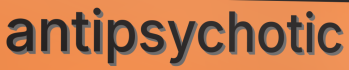
antipsychotic